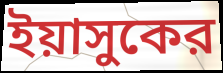
ইয়াসুকের